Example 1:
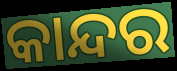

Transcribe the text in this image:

କାନ୍ଦର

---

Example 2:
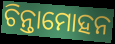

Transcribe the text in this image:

ଚିନ୍ତାମୋହନ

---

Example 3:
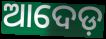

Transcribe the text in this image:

ଆଦେଡ଼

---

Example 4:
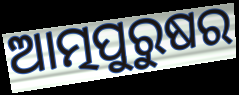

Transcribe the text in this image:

ଆତ୍ମପୁରୁଷର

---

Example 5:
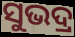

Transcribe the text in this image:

ସୁଭଦ୍ର